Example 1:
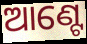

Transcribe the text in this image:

ଆଣ୍ଟେ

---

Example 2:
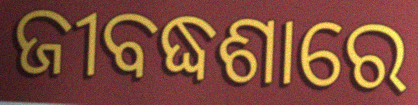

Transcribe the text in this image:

ଜୀବଦ୍ଧଶାରେ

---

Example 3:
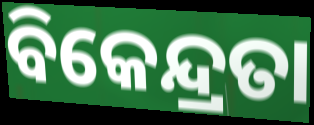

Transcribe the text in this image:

ବିକେନ୍ଦ୍ରତା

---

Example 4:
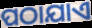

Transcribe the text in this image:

ପଠାଯାଏ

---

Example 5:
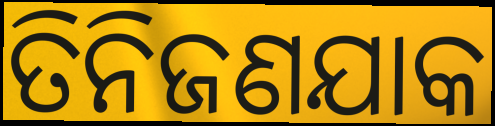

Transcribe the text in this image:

ତିନିଜଣଯାକ